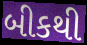
બીકથી